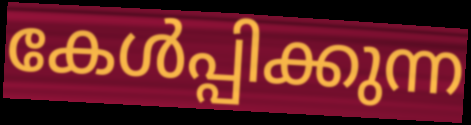
കേൾപ്പിക്കുന്ന